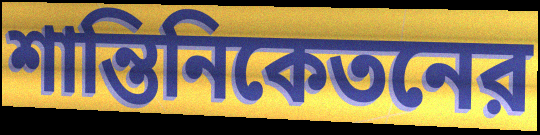
শান্তিনিকেতনের